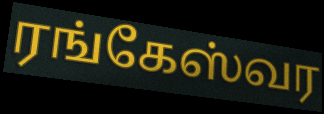
ரங்கேஸ்வர